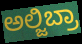
ಅಲ್ಜಿಬ್ರಾ